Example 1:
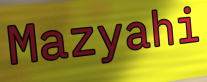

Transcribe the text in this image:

Mazyahi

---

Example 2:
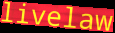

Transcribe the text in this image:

livelaw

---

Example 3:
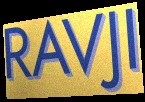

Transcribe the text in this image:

RAVJI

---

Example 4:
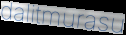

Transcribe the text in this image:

dalitmurasu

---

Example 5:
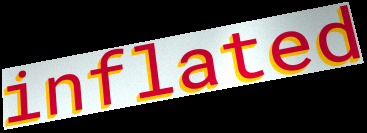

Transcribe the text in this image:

inflated